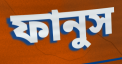
ফানুস